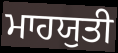
ਮਾਹਯੁਤੀ